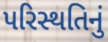
પરિસ્થતિનું